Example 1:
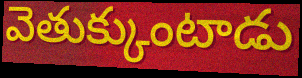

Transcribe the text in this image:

వెతుక్కుంటాడు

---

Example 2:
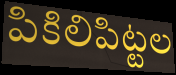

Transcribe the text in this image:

పికిలిపిట్టల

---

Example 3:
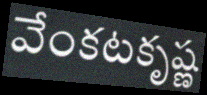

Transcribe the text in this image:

వేంకటకృష్ణ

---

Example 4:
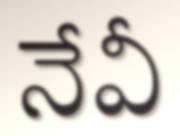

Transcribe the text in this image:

నేవీ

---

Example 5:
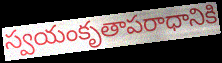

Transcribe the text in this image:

స్వయంకృతాపరాధానికి